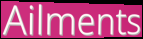
Ailments